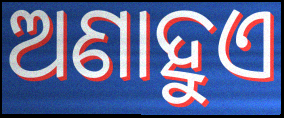
ଅଣାହୁଏ